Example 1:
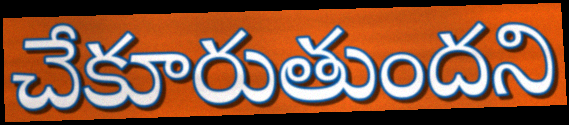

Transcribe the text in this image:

చేకూరుతుందని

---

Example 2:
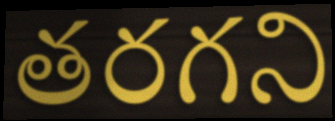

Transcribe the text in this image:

తరగని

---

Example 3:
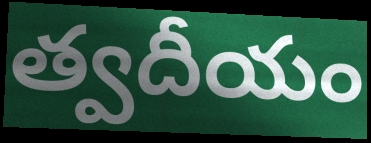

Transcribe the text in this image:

త్వదీయం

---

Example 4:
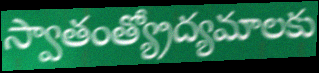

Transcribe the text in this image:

స్వాతంత్య్రోద్యమాలకు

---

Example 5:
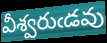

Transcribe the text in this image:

వీశ్వరుఁడవు